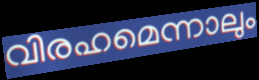
വിരഹമെന്നാലും